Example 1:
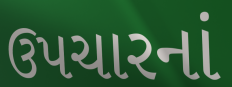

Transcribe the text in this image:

ઉપચારનાં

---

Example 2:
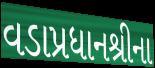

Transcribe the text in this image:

વડાપ્રધાનશ્રીના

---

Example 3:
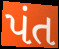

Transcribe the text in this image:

પંત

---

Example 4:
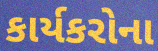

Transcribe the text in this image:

કાર્યકરોના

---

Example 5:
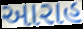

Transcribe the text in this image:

આરાહ